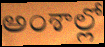
అంశాల్లో